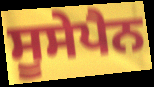
ਸੂਸੇਪੈਨ